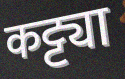
कट्ट्या